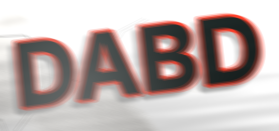
DABD